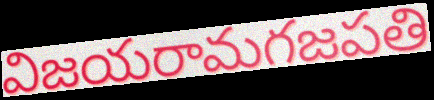
విజయరామగజపతి